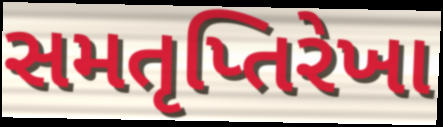
સમતૃપ્તિરેખા